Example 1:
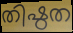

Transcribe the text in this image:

തിഷ്ഠത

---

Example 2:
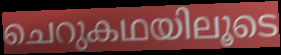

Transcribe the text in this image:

ചെറുകഥയിലൂടെ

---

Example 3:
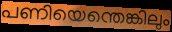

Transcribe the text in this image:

പണിയെന്തെങ്കിലും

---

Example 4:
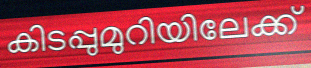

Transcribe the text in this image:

കിടപ്പുമുറിയിലേക്ക്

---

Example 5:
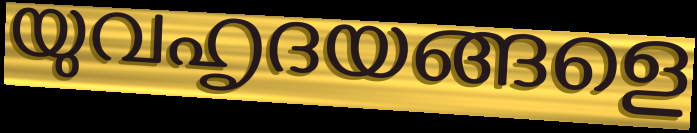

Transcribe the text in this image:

യുവഹൃദയങ്ങളെ